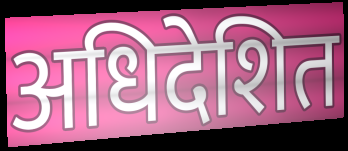
अधिदेशित